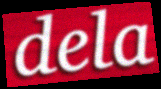
dela